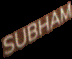
SUBHAM